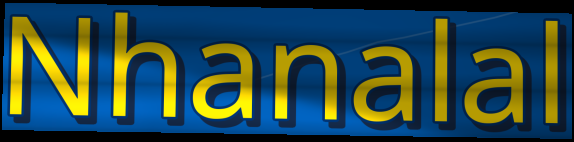
Nhanalal